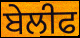
ਬੇਲੀਫ